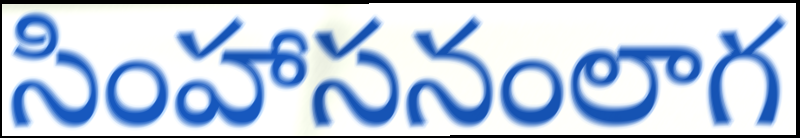
సింహాసనంలాగ